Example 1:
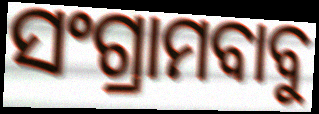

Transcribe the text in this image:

ସଂଗ୍ରାମବାବୁ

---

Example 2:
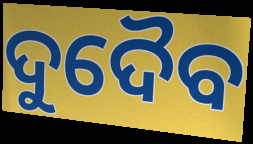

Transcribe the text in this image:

ଦୁଦୈବ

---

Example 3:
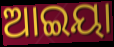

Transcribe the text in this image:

ଆଇୟା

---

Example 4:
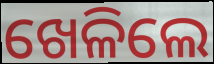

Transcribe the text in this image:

ଖେଳିଲେ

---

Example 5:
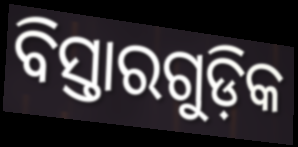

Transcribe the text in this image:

ବିସ୍ତାରଗୁଡ଼ିକ